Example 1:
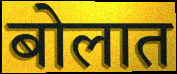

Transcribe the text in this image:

बोलात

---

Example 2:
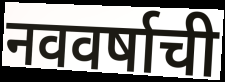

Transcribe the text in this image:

नववर्षाची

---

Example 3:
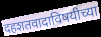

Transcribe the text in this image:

दहशतवादाविषयीच्या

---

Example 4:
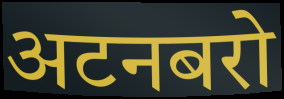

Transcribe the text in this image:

अटनबरो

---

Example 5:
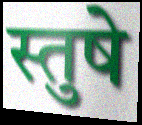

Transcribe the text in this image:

स्तुषे